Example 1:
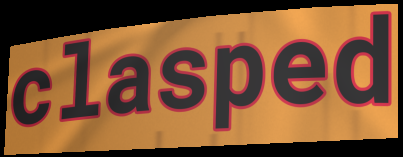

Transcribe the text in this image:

clasped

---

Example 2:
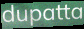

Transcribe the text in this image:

dupatta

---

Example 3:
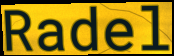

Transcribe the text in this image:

Radel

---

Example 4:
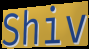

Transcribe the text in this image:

Shiv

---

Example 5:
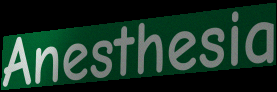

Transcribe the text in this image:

Anesthesia